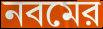
নবমের